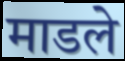
माडले